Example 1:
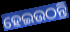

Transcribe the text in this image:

ହେଇଉଠନ୍ତି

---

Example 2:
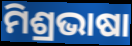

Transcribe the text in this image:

ମିଶ୍ରଭାଷା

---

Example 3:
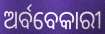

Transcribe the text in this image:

ଅର୍ବବେକାରୀ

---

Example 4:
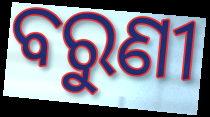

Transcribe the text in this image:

ବରୁଣୀ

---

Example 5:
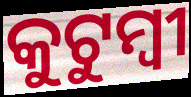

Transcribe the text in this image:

କୁଟୁମ୍ୱୀ